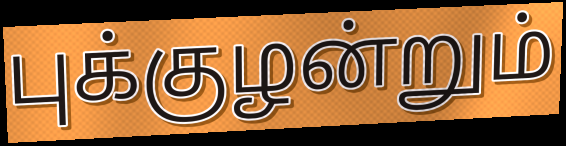
புக்குழன்றும்